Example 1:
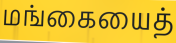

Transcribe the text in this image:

மங்கையைத்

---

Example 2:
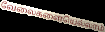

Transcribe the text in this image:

வேலைகளையெல்லாம்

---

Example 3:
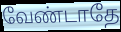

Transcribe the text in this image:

வேண்டாதே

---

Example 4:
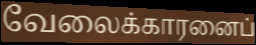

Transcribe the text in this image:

வேலைக்காரனைப்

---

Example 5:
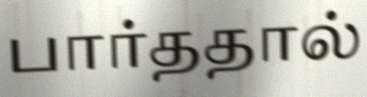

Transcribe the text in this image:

பார்ததால்